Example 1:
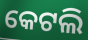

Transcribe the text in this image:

କେଟଲି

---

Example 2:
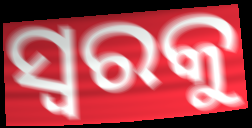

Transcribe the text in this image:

ସ୍ୱରକୁ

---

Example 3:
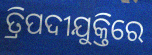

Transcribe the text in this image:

ତ୍ରିପଦୀଯୁକ୍ତିରେ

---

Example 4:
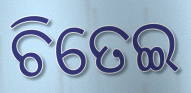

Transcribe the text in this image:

ଚିତେଇ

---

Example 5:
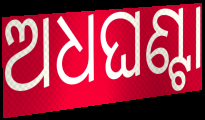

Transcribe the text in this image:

ଅଧଘଣ୍ଟା